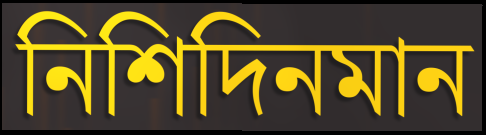
নিশিদিনমান